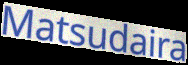
Matsudaira